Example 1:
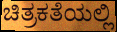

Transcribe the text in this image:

ಚಿತ್ರಕತೆಯಲ್ಲಿ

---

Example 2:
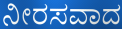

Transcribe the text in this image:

ನೀರಸವಾದ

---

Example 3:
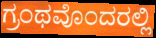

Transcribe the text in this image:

ಗ್ರಂಥವೊಂದರಲ್ಲಿ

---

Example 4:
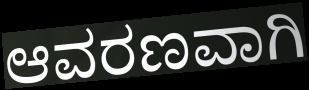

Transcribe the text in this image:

ಆವರಣವಾಗಿ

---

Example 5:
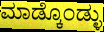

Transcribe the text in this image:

ಮಾಡ್ಕೊಂಡ್ಳು